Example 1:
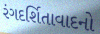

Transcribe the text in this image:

રંગદર્શિતાવાદનો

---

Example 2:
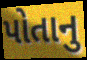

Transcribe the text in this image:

પોતાનુ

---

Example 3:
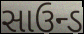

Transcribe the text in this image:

સાઉન્ડ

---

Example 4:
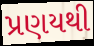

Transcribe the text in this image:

પ્રણયથી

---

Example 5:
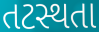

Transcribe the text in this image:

તટસ્થતા